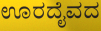
ಊರದೈವದ